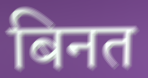
बिनत